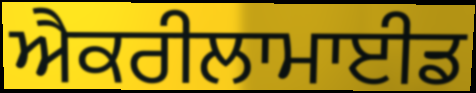
ਐਕਰੀਲਾਮਾਈਡ